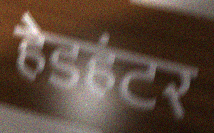
हेडहंटर